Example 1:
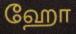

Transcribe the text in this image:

ஹோ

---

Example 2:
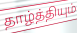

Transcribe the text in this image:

தாழ்த்தியும்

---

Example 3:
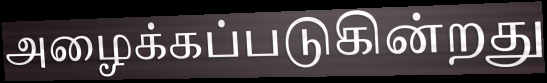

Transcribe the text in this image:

அழைக்கப்படுகின்றது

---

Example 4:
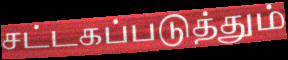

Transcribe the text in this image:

சட்டகப்படுத்தும்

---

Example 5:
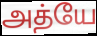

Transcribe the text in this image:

அத்யே